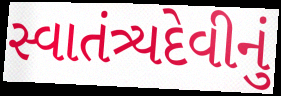
સ્વાતંત્ર્યદેવીનું